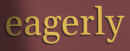
eagerly